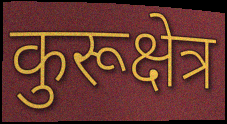
कुरूक्षेत्र